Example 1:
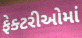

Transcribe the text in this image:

ફેક્ટરીઓમાં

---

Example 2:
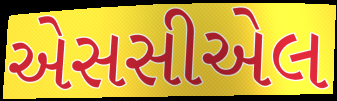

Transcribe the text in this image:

એસસીએલ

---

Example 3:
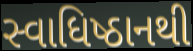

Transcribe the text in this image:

સ્વાધિષ્ઠાનથી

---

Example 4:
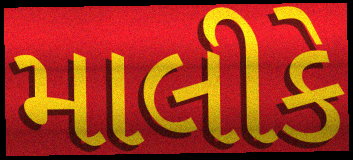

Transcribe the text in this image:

માલીકે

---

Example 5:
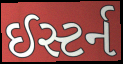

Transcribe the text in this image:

ઈસ્ટર્ન